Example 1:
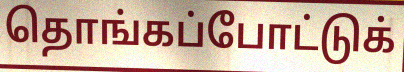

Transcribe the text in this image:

தொங்கப்போட்டுக்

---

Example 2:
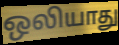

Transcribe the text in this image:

ஒலியாது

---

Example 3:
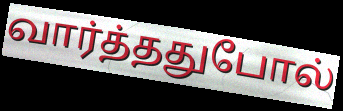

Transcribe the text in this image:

வார்த்ததுபோல்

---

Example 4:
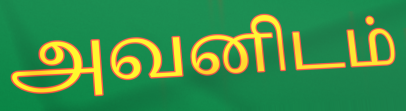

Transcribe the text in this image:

அவனிடம்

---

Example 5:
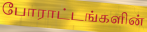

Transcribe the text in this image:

போராட்டங்களின்